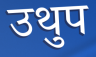
उथुप